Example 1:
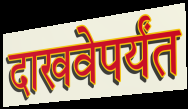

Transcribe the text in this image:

दाखवेपर्यंत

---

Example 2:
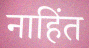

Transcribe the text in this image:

नाहिंत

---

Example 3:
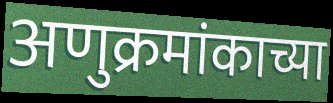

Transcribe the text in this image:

अणुक्रमांकाच्या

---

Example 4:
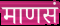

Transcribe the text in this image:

माणसं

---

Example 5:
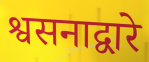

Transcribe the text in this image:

श्वसनाद्वारे